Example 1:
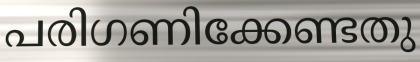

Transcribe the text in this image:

പരിഗണിക്കേണ്ടതു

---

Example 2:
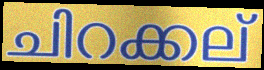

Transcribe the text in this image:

ചിറക്കല്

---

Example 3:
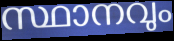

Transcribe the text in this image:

സ്ഥാനവും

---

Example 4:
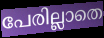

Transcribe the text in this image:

പേരില്ലാതെ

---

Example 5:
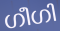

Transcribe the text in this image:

ഗീഗി